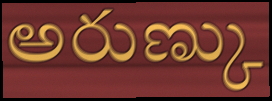
అరుణ్కు